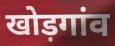
खोड़गांव